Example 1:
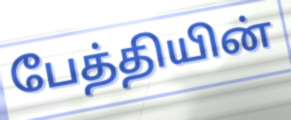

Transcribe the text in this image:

பேத்தியின்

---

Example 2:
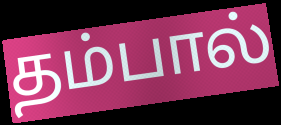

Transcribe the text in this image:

தம்பால்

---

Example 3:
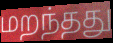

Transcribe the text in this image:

மறந்தது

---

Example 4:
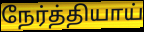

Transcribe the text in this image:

நேர்த்தியாய்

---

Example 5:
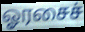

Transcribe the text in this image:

ஓரசைச்